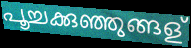
പൂച്ചക്കുഞ്ഞുങ്ങള്